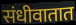
संधीवातात